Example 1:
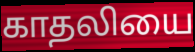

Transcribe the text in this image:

காதலியை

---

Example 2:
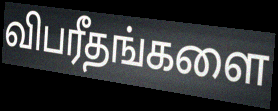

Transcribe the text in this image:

விபரீதங்களை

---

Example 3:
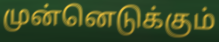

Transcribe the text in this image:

முன்னெடுக்கும்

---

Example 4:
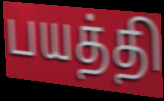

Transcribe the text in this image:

பயத்தி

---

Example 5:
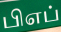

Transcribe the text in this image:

பிஎப்